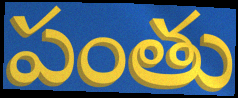
పంతు